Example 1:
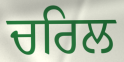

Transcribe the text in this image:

ਚਰਿਲ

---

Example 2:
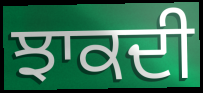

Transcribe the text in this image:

ਝਾਕਦੀ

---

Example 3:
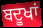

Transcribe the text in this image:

ਬਦੂਖਾਂ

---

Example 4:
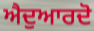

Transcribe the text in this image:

ਐਦੁਆਰਦੋ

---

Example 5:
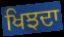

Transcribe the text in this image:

ਖਿਝਦਾ